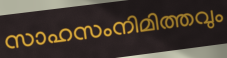
സാഹസംനിമിത്തവും